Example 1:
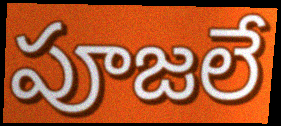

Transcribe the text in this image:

పూజలే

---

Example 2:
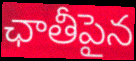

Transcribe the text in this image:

ఛాతీపైన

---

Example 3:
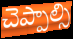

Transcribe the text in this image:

చెప్పాల్సి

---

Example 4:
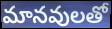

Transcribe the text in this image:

మానవులతో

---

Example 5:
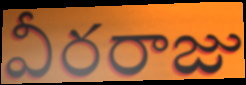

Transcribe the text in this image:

వీరరాజు